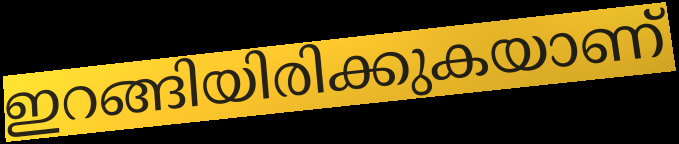
ഇറങ്ങിയിരിക്കുകയാണ്